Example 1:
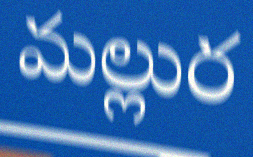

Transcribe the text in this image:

మల్లుర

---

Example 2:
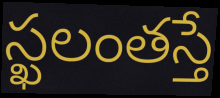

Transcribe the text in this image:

స్ఖలంతస్తే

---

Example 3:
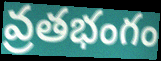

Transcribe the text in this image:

వ్రతభంగం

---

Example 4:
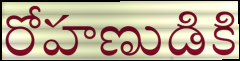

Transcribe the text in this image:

రోహణుడికి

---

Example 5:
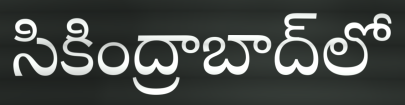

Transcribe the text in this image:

సికింద్రాబాద్‌లో